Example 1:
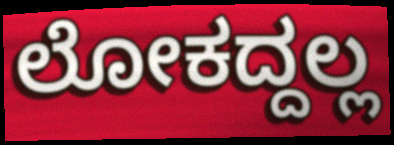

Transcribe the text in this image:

ಲೋಕದ್ದಲ್ಲ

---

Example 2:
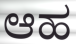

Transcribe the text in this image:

ಆಹ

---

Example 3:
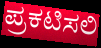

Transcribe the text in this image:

ಪ್ರಕಟಿಸಲಿ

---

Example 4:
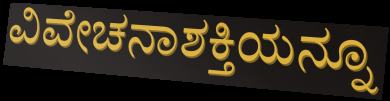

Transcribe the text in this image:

ವಿವೇಚನಾಶಕ್ತಿಯನ್ನೂ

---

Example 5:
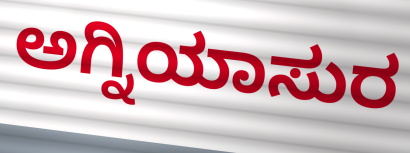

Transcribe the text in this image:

ಅಗ್ನಿಯಾಸುರ